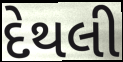
દેથલી